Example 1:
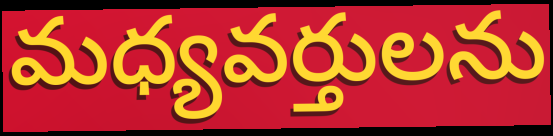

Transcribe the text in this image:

మధ్యవర్తులను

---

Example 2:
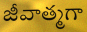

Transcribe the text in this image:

జీవాత్మగా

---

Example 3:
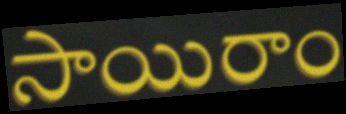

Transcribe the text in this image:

సాయిరాం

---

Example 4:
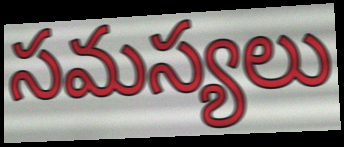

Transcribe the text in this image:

సమస్యలు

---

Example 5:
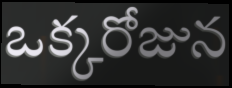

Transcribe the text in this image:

ఒక్కరోజున